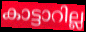
കാട്ടാറില്ല